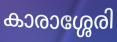
കാരാശ്ശേരി